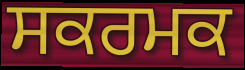
ਸਕਰਮਕ